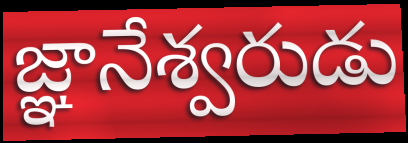
జ్ఞానేశ్వరుడు